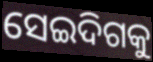
ସେଇଦିଗକୁ